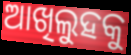
ଆଖିଲୁହକୁ